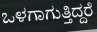
ಒಳಗಾಗುತ್ತಿದ್ದರೆ